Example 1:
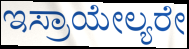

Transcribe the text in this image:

ಇಸ್ರಾಯೇಲ್ಯರೇ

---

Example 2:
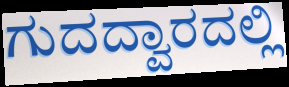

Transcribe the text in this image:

ಗುದದ್ವಾರದಲ್ಲಿ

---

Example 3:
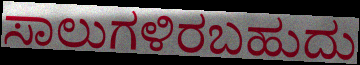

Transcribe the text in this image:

ಸಾಲುಗಳಿರಬಹುದು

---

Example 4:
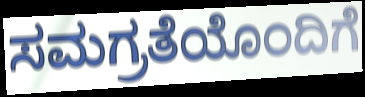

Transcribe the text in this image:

ಸಮಗ್ರತೆಯೊಂದಿಗೆ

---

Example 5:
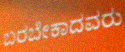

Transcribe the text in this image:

ಬರಬೇಕಾದವರು